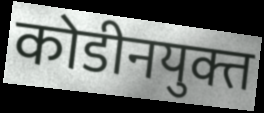
कोडीनयुक्त